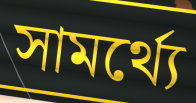
সামর্থ্যে